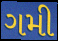
ગમી